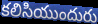
కలిసియుందురు